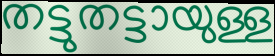
തട്ടുതട്ടായുള്ള